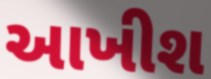
આખીશ